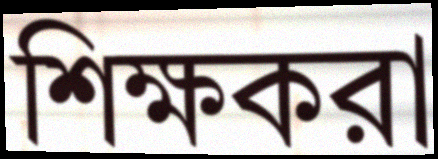
শিক্ষকরা